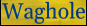
Waghole